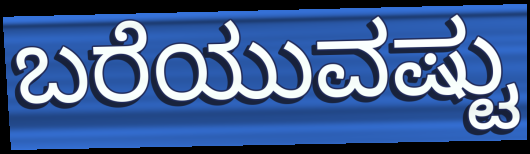
ಬರೆಯುವಷ್ಟು